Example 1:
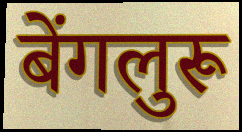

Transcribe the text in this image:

बेंगलुरू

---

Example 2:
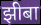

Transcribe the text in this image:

झीबा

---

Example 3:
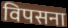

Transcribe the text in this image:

विपसना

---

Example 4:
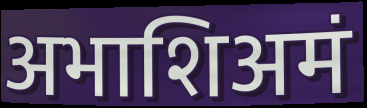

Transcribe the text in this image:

अभाशिअमं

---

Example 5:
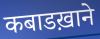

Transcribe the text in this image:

कबाडख़ाने